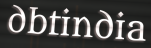
dbtindia